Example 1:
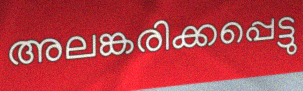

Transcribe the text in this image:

അലങ്കരിക്കപ്പെട്ടു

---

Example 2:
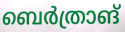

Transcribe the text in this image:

ബെർത്രാങ്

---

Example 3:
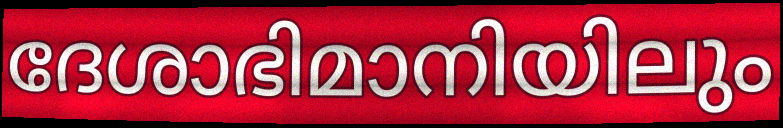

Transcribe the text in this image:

ദേശാഭിമാനിയിലും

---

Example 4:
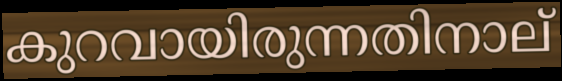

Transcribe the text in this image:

കുറവായിരുന്നതിനാല്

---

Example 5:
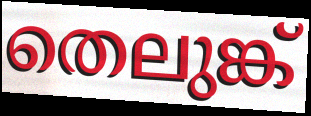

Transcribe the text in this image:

തെലുങ്ക്